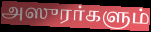
அஸுரர்களும்